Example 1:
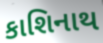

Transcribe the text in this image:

કાશિનાથ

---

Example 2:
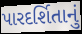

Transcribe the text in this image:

પારદર્શિતાનું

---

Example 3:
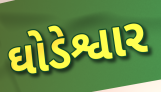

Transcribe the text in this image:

ઘોડેશ્વાર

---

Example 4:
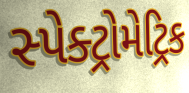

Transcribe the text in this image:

સ્પેક્ટ્રોમેટ્રિક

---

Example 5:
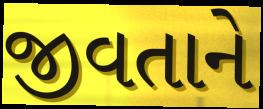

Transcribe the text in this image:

જીવતાને